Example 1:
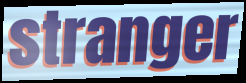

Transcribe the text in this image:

stranger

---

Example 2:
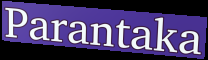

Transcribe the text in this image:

Parantaka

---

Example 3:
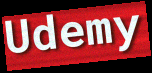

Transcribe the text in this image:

Udemy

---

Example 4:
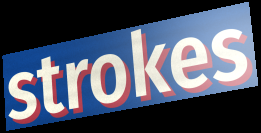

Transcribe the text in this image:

strokes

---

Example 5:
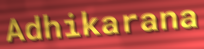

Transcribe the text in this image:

Adhikarana